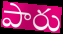
పారు